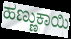
ಹಣ್ಣುಕಾಯಿ